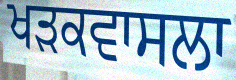
ਖੜਕਵਾਸਲਾ